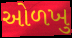
ઓળખુ